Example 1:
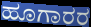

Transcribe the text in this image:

ಹೂಗಾರರ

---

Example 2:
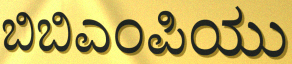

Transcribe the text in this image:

ಬಿಬಿಎಂಪಿಯು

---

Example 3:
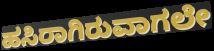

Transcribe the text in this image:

ಹಸಿರಾಗಿರುವಾಗಲೇ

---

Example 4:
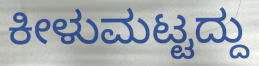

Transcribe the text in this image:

ಕೀಳುಮಟ್ಟದ್ದು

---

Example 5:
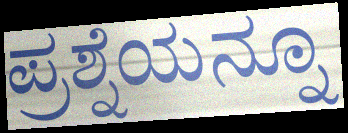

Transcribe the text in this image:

ಪ್ರಶ್ನೆಯನ್ನೂ